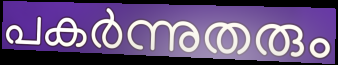
പകർന്നുതരും